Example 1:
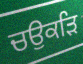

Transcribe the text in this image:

ਚਉਕੜਿ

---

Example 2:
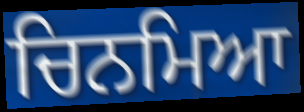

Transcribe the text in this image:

ਚਿਨਮਿਆ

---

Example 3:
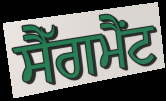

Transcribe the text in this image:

ਸੈੱਗਮੈਂਟ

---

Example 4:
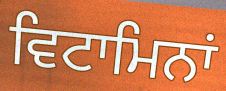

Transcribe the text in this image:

ਵਿਟਾਮਿਨਾਂ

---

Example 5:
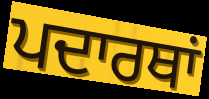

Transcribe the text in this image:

ਪਦਾਰਥਾਂ